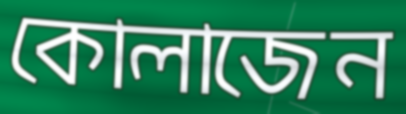
কোলাজেন